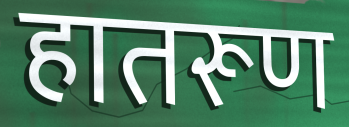
हातरूण